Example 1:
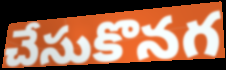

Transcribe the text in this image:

చేసుకొనగ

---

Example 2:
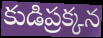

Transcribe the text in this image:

కుడిప్రక్కన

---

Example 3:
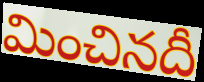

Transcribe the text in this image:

మించినదీ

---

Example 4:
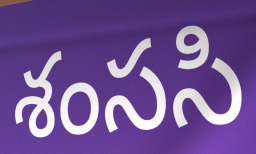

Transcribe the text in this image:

శంససి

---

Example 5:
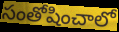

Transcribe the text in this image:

సంతోషించాలో